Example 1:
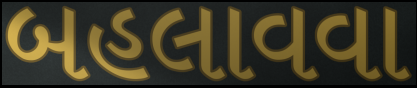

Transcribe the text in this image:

બહલાવવા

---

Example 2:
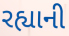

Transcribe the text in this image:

રહ્યાની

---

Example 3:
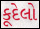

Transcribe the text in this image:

કૂદેલો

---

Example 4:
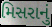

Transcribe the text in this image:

મિસરાનું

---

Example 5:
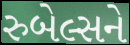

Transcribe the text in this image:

રુબેલ્સને